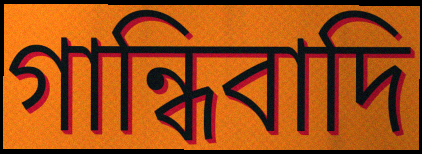
গান্ধিবাদি